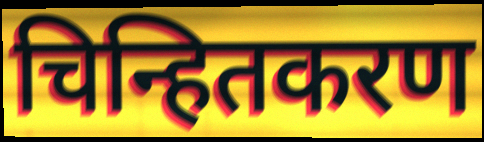
चिन्हितकरण